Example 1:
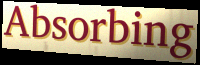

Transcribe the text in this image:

Absorbing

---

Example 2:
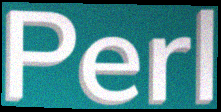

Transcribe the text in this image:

Perl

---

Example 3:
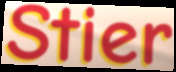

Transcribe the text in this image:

Stier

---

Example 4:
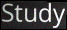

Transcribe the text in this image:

Study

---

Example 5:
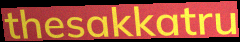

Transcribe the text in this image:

thesakkatru